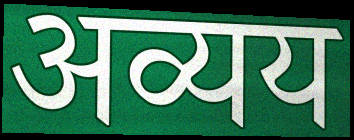
अव्यय